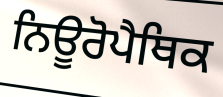
ਨਿਊਰੋਪੈਥਿਕ